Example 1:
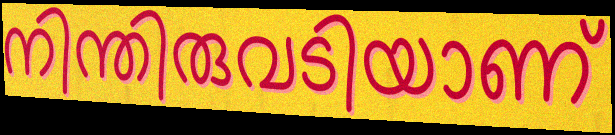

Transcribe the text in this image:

നിന്തിരുവടിയാണ്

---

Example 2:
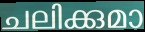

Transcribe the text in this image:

ചലിക്കുമാ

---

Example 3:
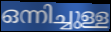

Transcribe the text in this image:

ഒന്നിച്ചുള്ള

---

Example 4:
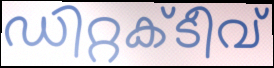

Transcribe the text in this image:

ഡിറ്റക്ടീവ്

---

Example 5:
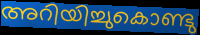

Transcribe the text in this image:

അറിയിച്ചുകൊണ്ടു